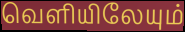
வெளியிலேயும்